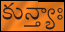
కున్త్యాః